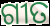
ଗୀତ